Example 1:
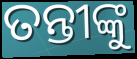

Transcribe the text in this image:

ତନ୍ତୀଙ୍କୁ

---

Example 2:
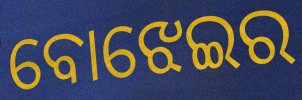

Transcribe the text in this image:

ବୋଝେଇର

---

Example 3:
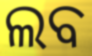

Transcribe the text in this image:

ଲବ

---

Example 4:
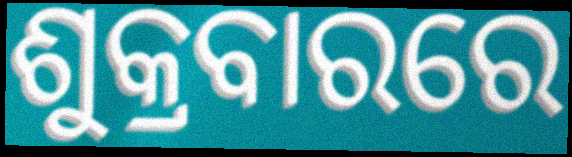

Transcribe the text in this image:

ଶୁକ୍ରବାରରେ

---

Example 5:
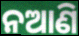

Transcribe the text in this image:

ନଆଣି